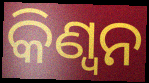
କିଣ୍ୱନ